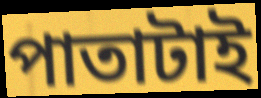
পাতাটাই